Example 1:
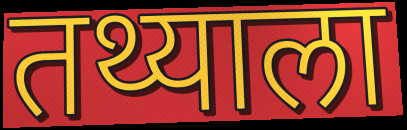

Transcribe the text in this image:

तथ्याला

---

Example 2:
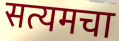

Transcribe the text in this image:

सत्यमचा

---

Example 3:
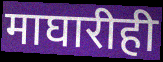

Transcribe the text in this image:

माघारीही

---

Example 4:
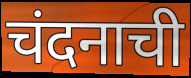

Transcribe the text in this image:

चंदनाची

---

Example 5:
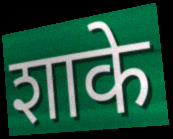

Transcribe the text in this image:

शाके